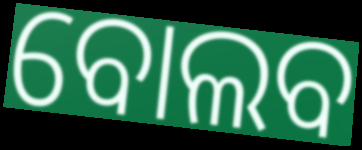
ବୋଲବ